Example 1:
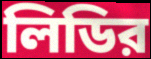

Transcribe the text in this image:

লিডির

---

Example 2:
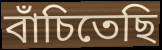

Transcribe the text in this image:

বাঁচিতেছি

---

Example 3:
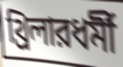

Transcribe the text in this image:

থ্রিলারধর্মী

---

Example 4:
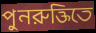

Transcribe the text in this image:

পুনরুক্তিতে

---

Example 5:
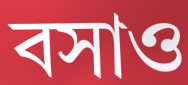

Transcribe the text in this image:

বসাও